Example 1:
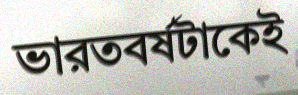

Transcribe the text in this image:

ভারতবর্ষটাকেই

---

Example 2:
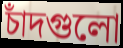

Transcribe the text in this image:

চাঁদগুলো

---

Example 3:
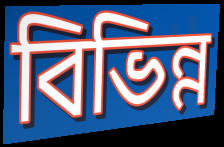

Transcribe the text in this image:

বিভিন্ন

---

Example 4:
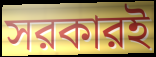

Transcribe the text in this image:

সরকারই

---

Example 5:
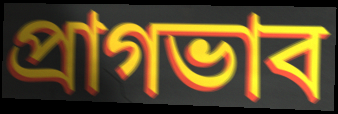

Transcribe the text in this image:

প্রাগভাব